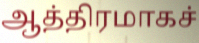
ஆத்திரமாகச்